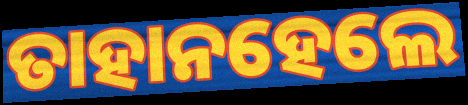
ତାହାନହେଲେ